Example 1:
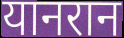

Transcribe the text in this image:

यानरान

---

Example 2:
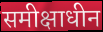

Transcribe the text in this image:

समीक्षाधीन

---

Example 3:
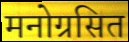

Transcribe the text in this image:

मनोग्रसित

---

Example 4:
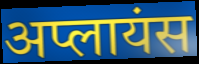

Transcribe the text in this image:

अप्‍लायंस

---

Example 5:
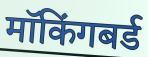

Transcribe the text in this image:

मॉकिंगबर्ड